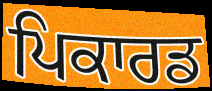
ਪਿਕਾਰਡ